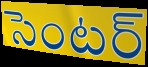
సెంటర్